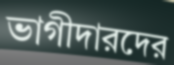
ভাগীদারদের